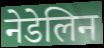
नेडेलिन